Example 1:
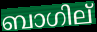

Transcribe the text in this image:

ബാഗില്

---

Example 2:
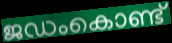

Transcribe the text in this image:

ജഡംകൊണ്ട്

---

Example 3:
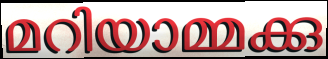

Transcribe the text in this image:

മറിയാമ്മക്കു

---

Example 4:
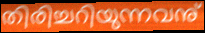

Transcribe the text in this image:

തിരിച്ചറിയുന്നവനു്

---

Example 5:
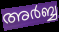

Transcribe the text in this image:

അർബ്ബ